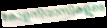
കോളനിവാസികളുടെ